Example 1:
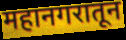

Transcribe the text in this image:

महानगरातून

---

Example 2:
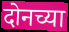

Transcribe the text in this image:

दोनच्या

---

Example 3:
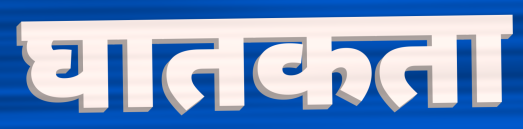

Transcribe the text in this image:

घातकता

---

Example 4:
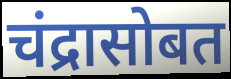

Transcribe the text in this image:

चंद्रासोबत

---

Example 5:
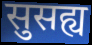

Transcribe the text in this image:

सुसह्य